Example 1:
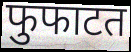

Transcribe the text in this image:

फुफाटत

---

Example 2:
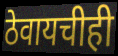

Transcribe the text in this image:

ठेवायचीही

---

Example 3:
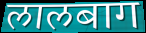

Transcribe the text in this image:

लालबाग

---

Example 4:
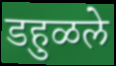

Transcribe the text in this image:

डहुळले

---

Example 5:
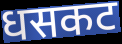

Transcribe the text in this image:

धसकट